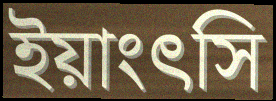
ইয়াংৎসি